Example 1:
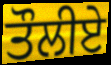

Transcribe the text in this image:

ਤੌਲੀਏ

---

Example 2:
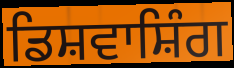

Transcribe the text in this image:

ਡਿਸ਼ਵਾਸ਼ਿੰਗ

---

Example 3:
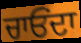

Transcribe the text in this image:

ਚਾਓਂਦਾ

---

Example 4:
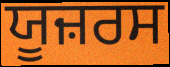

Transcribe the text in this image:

ਯੂਜ਼ਰਸ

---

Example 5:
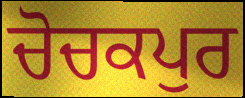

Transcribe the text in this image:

ਚੋਚਕਪੁਰ